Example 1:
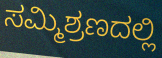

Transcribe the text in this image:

ಸಮ್ಮಿಶ್ರಣದಲ್ಲಿ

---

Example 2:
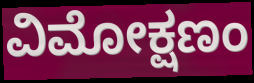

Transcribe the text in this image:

ವಿಮೋಕ್ಷಣಂ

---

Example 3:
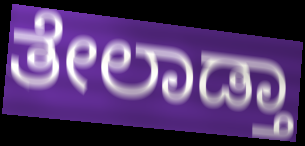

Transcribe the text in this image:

ತೇಲಾಡ್ತಾ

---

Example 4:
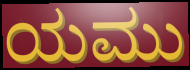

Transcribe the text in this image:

ಯಮು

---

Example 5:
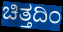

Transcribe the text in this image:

ಚಿತ್ತದಿಂ